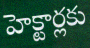
హెక్టార్లకు